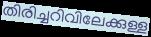
തിരിച്ചറിവിലേക്കുള്ള